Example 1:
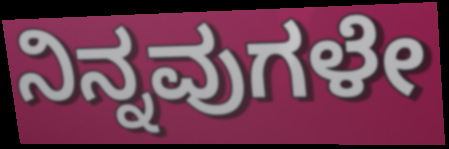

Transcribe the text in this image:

ನಿನ್ನವುಗಳೇ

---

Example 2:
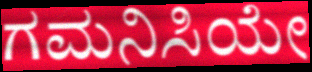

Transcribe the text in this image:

ಗಮನಿಸಿಯೇ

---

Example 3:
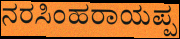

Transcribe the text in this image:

ನರಸಿಂಹರಾಯಪ್ಪ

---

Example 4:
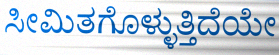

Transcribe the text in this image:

ಸೀಮಿತಗೊಳ್ಳುತ್ತಿದೆಯೇ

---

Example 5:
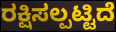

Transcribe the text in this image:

ರಕ್ಷಿಸಲ್ಪಟ್ಟಿದೆ